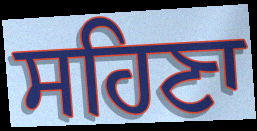
ਸਹਿਣਾ